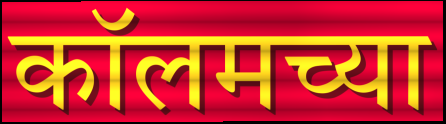
कॉलमच्या